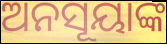
ଅନସୂୟାଙ୍କ